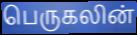
பெருகலின்